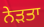
ਨੇੜਤਾ